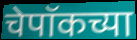
चेपॉकच्या